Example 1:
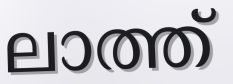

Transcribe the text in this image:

ലാത്ത്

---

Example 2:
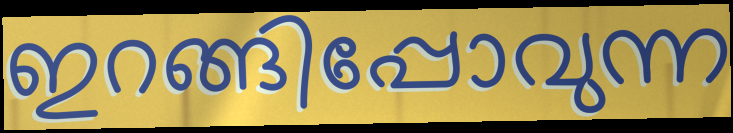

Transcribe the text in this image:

ഇറങ്ങിപ്പോവുന്ന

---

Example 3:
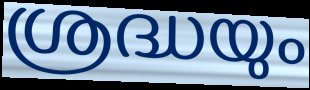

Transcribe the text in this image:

ശ്രദ്ധയും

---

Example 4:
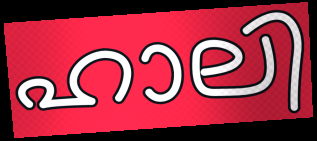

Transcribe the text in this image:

ഹാലി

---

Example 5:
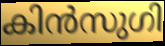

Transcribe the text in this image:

കിൻസുഗി